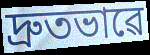
দ্ৰুতভাৱে